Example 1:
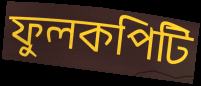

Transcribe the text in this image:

ফুলকপিটি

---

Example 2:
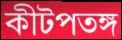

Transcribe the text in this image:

কীটপতঙ্গ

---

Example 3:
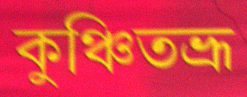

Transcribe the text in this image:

কুঞ্চিতভ্রূ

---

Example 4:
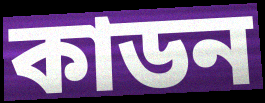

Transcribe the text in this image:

কাডন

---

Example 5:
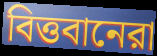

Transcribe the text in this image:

বিত্তবানেরা